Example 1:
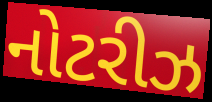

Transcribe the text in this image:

નોટરીઝ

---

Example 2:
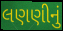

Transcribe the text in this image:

લણણીનું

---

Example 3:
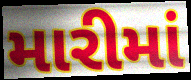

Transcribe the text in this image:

મારીમાં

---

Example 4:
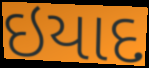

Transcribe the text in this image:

ઇયાદ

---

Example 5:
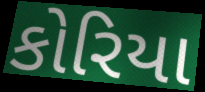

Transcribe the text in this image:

કોરિયા